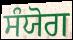
ਸੰਯੋਗ